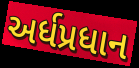
અર્ધપ્રધાન